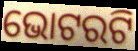
ଭୋଟରଟି